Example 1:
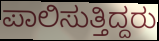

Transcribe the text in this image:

ಪಾಲಿಸುತ್ತಿದ್ದರು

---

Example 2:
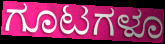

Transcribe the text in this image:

ಗೂಟಗಳೂ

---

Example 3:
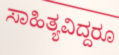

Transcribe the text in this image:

ಸಾಹಿತ್ಯವಿದ್ದರೂ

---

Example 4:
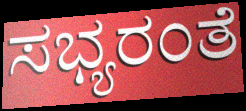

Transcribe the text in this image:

ಸಭ್ಯರಂತೆ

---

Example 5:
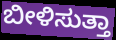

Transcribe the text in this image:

ಬೀಳಿಸುತ್ತಾ